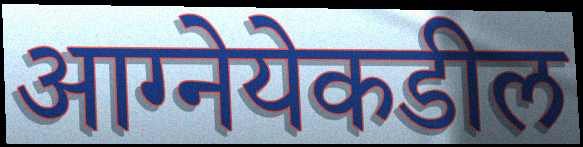
आग्नेयेकडील